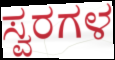
ಸ್ವರಗಳ